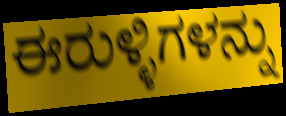
ಈರುಳ್ಳಿಗಳನ್ನು